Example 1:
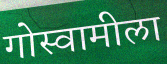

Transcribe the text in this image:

गोस्वामीला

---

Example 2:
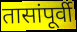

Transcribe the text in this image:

तासांपूर्वी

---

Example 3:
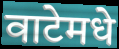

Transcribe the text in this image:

वाटेमधे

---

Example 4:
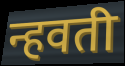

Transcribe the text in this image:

न्हवती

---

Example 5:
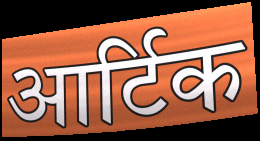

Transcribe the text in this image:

आर्टिक